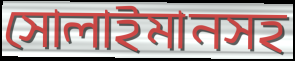
সোলাইমানসহ